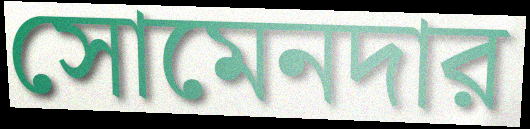
সোমেনদার